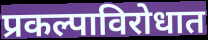
प्रकल्पाविरोधात